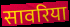
सावरिया